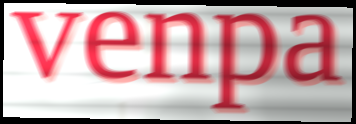
venpa